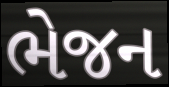
ભેજન